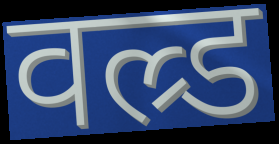
वल्र्ड